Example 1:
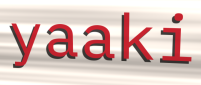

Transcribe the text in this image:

yaaki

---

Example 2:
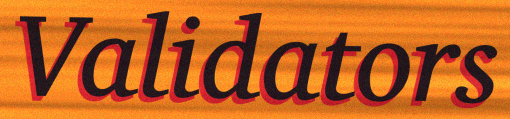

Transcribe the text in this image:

Validators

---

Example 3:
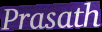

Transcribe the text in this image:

Prasath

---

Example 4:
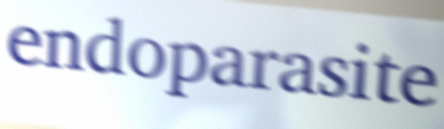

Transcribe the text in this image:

endoparasite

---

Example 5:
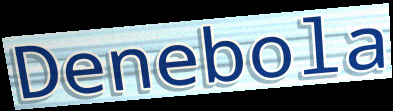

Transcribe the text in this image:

Denebola